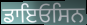
ਡਾਇਓਸਿਨ